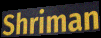
Shriman